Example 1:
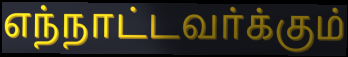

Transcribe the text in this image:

எந்நாட்டவர்க்கும்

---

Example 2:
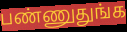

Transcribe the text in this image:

பண்ணுதுங்க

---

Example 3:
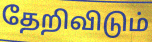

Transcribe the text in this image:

தேறிவிடும்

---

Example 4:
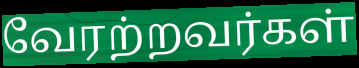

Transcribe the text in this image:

வேரற்றவர்கள்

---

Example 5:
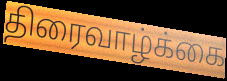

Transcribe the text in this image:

திரைவாழ்க்கை